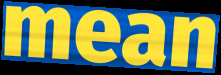
mean